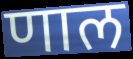
णाल